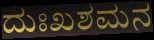
ದುಃಖಶಮನ